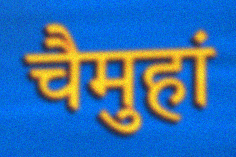
चैमुहां